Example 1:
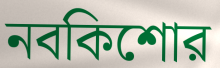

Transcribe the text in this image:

নবকিশোর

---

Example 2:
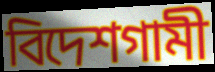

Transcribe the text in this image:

বিদেশগামী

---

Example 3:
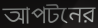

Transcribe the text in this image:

আপটনের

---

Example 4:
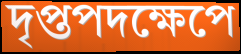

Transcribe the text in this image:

দৃপ্তপদক্ষেপে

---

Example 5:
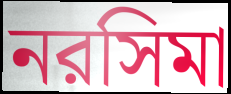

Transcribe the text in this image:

নরসিমা